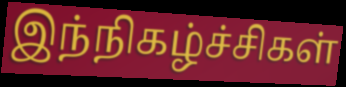
இந்நிகழ்ச்சிகள்